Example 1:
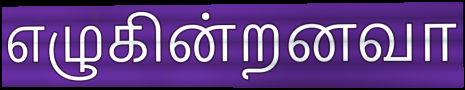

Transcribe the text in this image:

எழுகின்றனவா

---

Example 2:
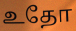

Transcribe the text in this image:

உதோ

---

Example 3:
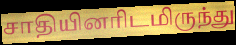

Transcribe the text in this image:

சாதியினரிடமிருந்து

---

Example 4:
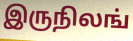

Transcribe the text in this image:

இருநிலங்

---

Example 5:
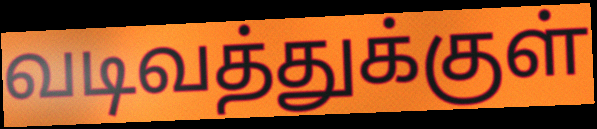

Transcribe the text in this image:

வடிவத்துக்குள்